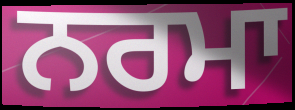
ਨਰਮਾ